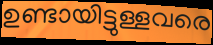
ഉണ്ടായിട്ടുള്ളവരെ